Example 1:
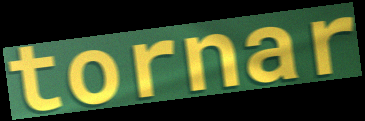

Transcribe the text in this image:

tornar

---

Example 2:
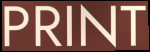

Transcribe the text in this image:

PRINT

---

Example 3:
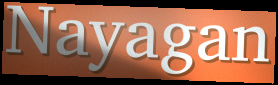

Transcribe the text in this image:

Nayagan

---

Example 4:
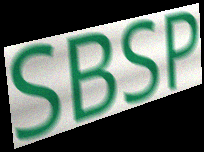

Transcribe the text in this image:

SBSP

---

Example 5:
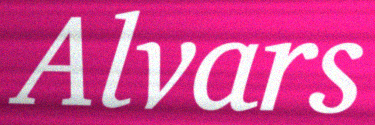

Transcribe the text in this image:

Alvars